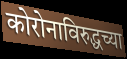
कोरोनाविरुद्धच्या